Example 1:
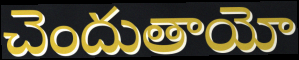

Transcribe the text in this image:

చెందుతాయో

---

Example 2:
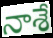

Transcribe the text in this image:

నాశే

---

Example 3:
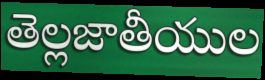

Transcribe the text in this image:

తెల్లజాతీయుల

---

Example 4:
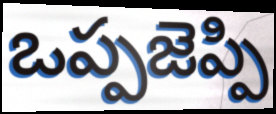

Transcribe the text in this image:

ఒప్పజెప్పి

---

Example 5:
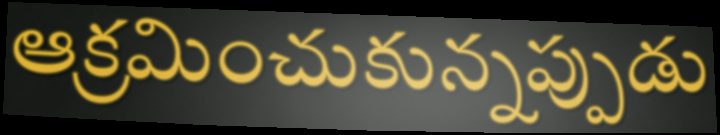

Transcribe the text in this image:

ఆక్రమించుకున్నప్పుడు